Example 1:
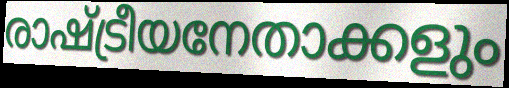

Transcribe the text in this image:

രാഷ്ട്രീയനേതാക്കളും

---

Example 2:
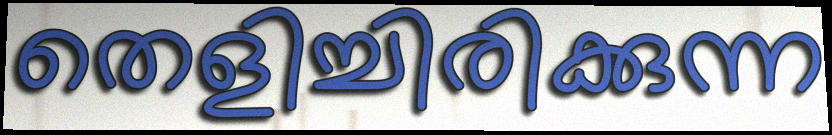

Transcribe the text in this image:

തെളിച്ചിരിക്കുന്ന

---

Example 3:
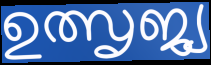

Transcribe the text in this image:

ഉത്സൃജ്യ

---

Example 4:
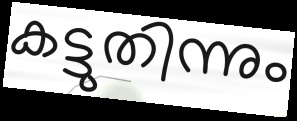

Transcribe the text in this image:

കട്ടുതിന്നും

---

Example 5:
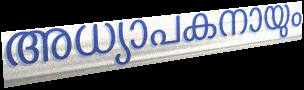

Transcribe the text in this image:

അധ്യാപകനായും